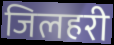
जिलहरी